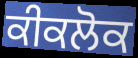
ਕੀਕਲੋਕ